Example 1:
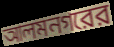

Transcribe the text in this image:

আলমনগরের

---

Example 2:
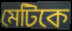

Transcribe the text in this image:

মেটিকে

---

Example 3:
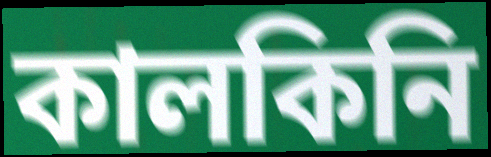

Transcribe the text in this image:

কালকিনি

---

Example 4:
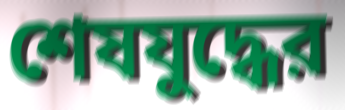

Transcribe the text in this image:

শেষযুদ্ধের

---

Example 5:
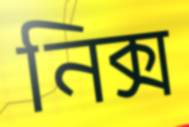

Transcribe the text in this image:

নিক্স